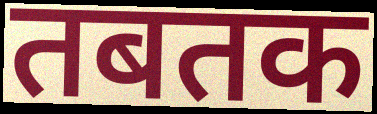
तबतक